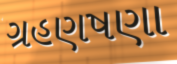
ગ્રહણષણા